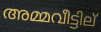
അമ്മവീട്ടില്